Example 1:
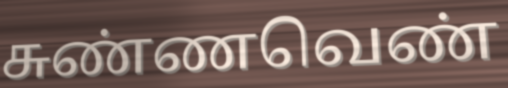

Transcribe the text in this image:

சுண்ணவெண்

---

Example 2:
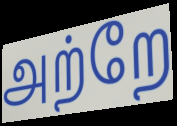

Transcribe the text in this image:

அற்றே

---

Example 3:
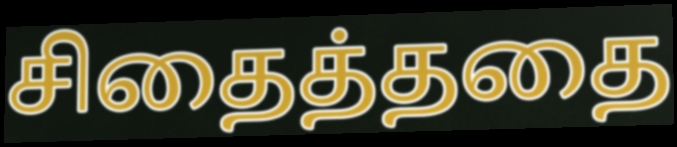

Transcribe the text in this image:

சிதைத்ததை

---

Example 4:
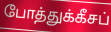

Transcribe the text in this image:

போத்துக்கீசப்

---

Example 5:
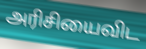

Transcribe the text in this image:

அரிசியைவிட